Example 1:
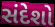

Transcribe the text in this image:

સંદેશો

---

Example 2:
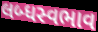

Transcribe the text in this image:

લબ્ધસ્વભાવ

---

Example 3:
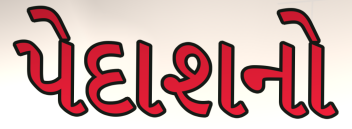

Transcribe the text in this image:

પેદાશનો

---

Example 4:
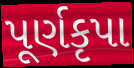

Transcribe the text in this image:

પૂર્ણકૃપા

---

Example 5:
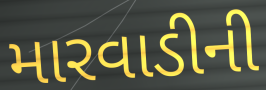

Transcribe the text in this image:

મારવાડીની